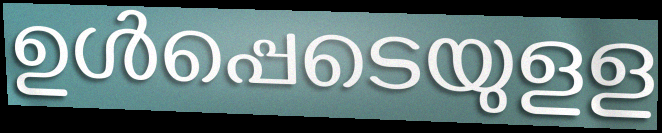
ഉൾപ്പെടെയുളള